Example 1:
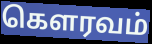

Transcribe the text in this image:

கெளரவம்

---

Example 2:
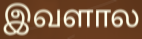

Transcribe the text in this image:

இவளால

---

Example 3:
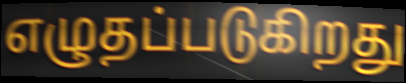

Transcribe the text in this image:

எழுதப்படுகிறது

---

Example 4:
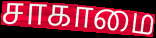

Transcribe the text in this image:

சாகாமை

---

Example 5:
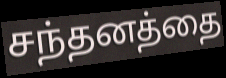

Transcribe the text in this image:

சந்தனத்தை